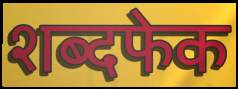
शब्दफेक